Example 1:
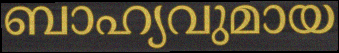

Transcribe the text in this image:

ബാഹ്യവുമായ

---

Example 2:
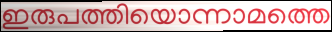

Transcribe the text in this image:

ഇരുപത്തിയൊന്നാമത്തെ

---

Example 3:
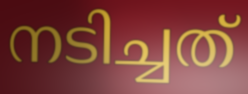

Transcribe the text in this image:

നടിച്ചത്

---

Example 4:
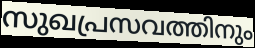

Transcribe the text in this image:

സുഖപ്രസവത്തിനും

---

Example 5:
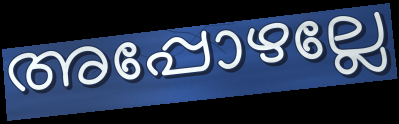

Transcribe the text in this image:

അപ്പോഴല്ലേ